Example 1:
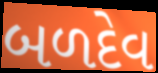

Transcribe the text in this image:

બળદેવ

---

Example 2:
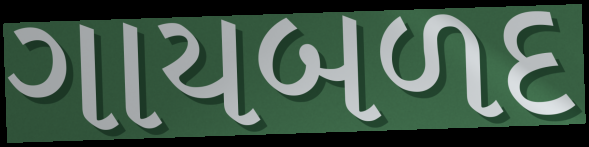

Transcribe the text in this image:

ગાયબળદ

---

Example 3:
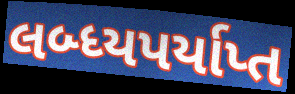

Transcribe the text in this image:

લબ્ધ્યપર્યાપ્ત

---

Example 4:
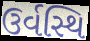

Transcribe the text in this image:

ઉર્વસ્થિ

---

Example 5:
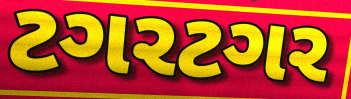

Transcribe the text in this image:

ટગરટગર